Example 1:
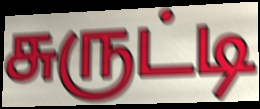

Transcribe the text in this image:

சுருட்டி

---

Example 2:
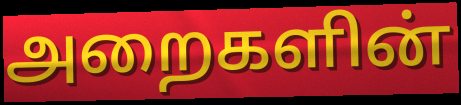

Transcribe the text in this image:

அறைகளின்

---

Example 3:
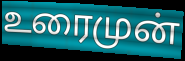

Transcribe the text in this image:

உரைமுன்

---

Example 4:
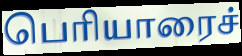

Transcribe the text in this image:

பெரியாரைச்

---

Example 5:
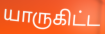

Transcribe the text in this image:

யாருகிட்ட